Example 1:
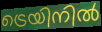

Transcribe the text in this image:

ട്രെയിനിൽ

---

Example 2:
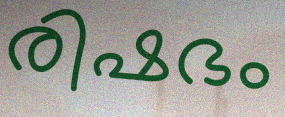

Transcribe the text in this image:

രിഷഭം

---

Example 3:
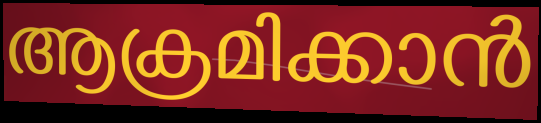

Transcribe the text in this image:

ആക്രമിക്കാൻ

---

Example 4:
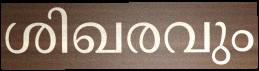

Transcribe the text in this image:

ശിഖരവും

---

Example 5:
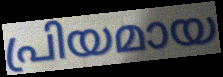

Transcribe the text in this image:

പ്രിയമായ